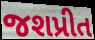
જશપ્રીત